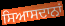
ਸਿਆਸਦਾਨਾਂ